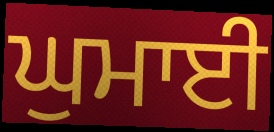
ਘੁਮਾਈ